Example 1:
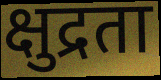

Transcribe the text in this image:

क्षुद्रता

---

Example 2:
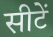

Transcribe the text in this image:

सीटें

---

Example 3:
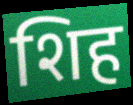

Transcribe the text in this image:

शिह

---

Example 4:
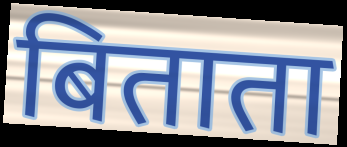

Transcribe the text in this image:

बिताता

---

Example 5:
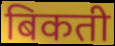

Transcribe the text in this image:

बिकती